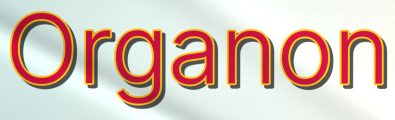
Organon